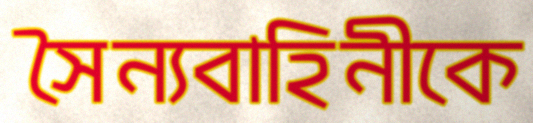
সৈন্যবাহিনীকে